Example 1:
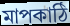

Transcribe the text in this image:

মাপকাঠি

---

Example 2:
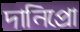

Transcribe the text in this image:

দানিপ্রো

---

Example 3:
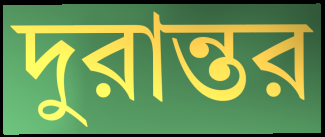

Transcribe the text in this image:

দুরান্তর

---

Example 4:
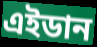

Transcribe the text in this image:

এইডান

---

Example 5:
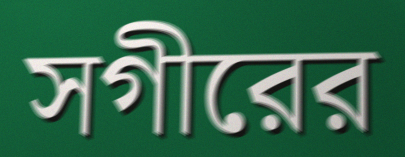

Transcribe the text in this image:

সগীরের